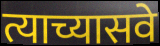
त्याच्यासवे